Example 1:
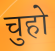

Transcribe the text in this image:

चुहो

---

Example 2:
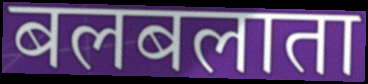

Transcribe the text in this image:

बलबलाता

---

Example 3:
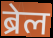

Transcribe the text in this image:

ब्रेल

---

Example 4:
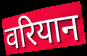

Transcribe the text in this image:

वरियान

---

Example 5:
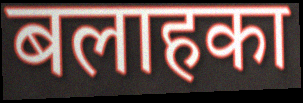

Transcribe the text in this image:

बलाहका